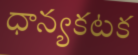
ధాన్యకటక